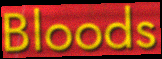
Bloods